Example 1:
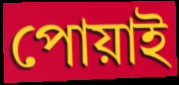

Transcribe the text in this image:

পোয়াই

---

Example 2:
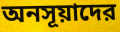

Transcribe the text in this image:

অনসূয়াদের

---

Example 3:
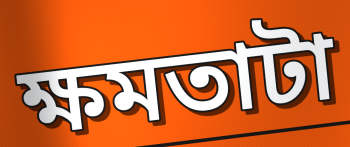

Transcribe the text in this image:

ক্ষমতাটা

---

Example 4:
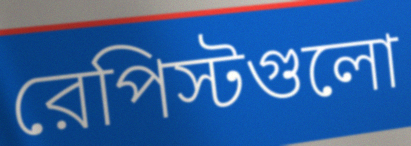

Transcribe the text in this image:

রেপিস্টগুলো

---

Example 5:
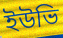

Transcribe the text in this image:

ইউভি